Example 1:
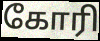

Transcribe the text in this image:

கோரி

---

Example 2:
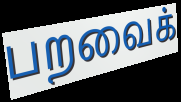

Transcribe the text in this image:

பறவைக்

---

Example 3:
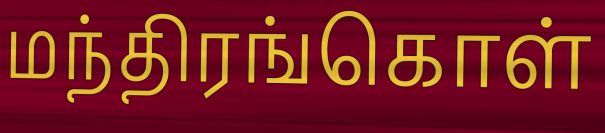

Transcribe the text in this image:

மந்திரங்கொள்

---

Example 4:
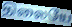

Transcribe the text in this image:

திலையே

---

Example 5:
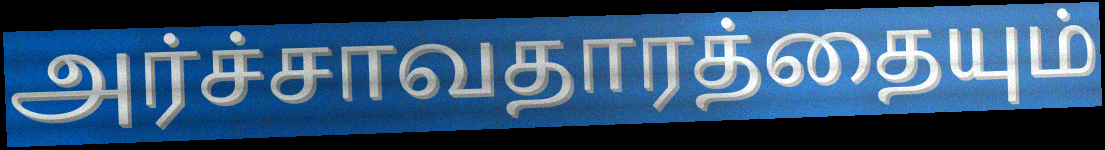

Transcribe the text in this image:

அர்ச்சாவதாரத்தையும்